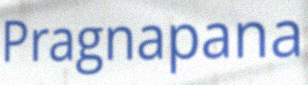
Pragnapana